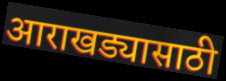
आराखड्यासाठी